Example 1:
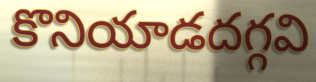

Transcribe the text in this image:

కొనియాడదగ్గవి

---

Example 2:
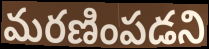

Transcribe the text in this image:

మరణింపడని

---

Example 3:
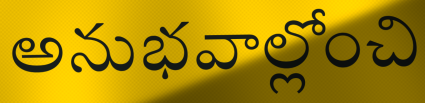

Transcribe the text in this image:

అనుభవాల్లోంచి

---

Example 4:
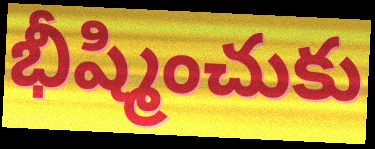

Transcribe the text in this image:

భీష్మించుకు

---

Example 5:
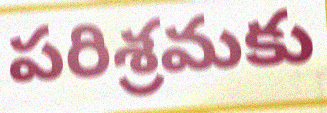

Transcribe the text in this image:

పరిశ్రమకు